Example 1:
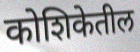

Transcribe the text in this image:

कोशिकेतील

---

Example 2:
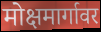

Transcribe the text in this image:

मोक्षमार्गावर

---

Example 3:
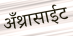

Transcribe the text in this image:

अँथ्रासाईट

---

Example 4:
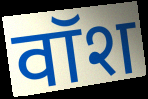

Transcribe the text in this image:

वॉश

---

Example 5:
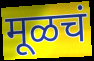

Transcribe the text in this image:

मूळचं